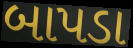
બાપડા